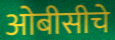
ओबीसीचे